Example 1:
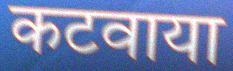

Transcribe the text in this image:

कटवाया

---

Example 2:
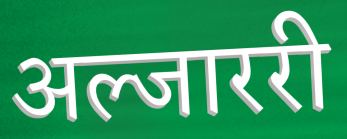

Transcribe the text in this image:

अल्जाररी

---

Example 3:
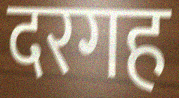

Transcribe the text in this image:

दरगह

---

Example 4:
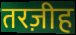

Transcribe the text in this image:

तरज़ीह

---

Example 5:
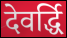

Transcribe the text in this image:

देवर्द्धि